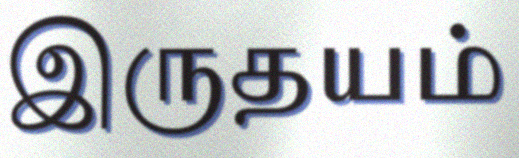
இருதயம்